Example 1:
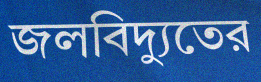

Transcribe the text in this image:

জলবিদ্যুতের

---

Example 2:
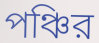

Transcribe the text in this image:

পঞ্চির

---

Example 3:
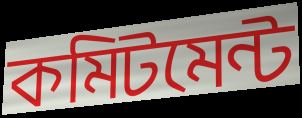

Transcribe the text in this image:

কমিটমেন্ট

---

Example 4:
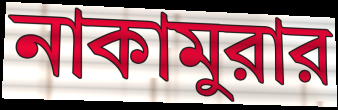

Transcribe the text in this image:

নাকামুরার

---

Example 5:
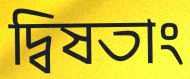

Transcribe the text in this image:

দ্বিষতাং